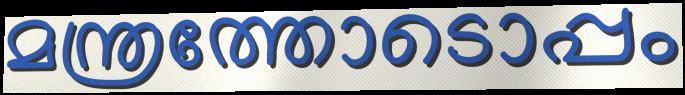
മന്ത്രത്തോടൊപ്പം